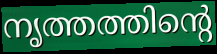
നൃത്തത്തിന്റെ